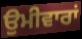
ਉਮੀਵਾਰਾਂ